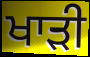
ਖਾੜੀ